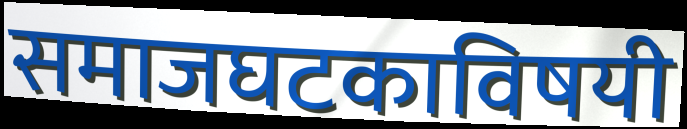
समाजघटकाविषयी